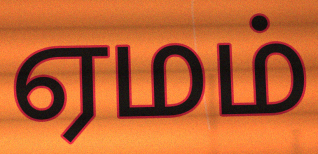
ஏமம்